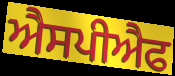
ਐਸਪੀਐਫ